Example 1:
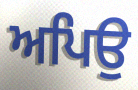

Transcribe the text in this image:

ਅਪਿਉ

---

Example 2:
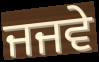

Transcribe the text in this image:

ਜਜਵੇ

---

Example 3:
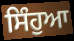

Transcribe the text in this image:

ਸਿੰਹੁਆ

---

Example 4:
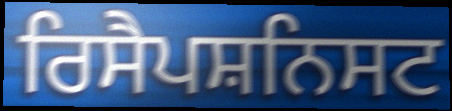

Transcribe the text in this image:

ਰਿਸੈਪਸ਼ਨਿਸਟ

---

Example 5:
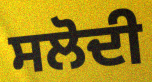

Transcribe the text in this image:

ਸਲੋਦੀ